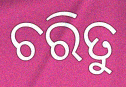
ଚରିତୁ